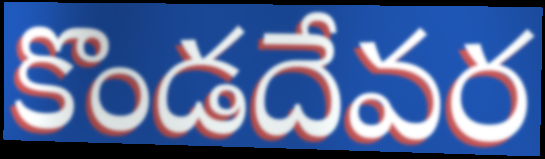
కొండదేవర